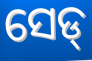
ସେଡ୍